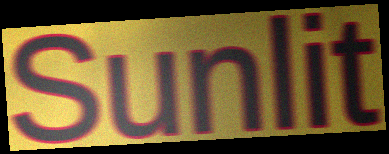
Sunlit